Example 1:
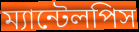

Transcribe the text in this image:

ম্যান্টেলপিস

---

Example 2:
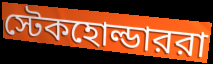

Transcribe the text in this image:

স্টেকহোল্ডাররা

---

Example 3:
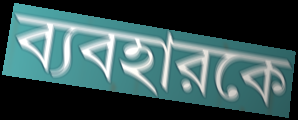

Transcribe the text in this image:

ব্যবহারকে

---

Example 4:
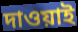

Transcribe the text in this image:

দাওয়াই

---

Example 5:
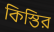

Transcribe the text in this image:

কিস্তির